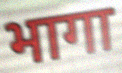
भागा